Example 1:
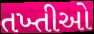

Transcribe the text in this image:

તખ્તીઓ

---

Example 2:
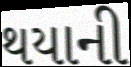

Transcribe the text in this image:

થયાની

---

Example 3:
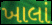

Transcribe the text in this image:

ખાલાં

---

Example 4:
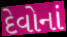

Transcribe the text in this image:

દેવોનાં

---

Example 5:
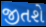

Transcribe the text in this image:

જીતશે